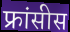
फ्रांसीस